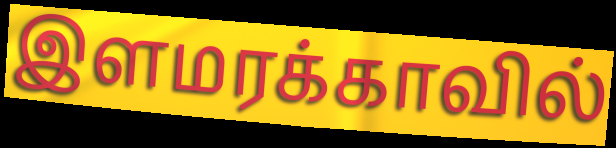
இளமரக்காவில்